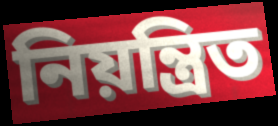
নিয়ন্ত্রিত